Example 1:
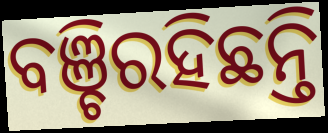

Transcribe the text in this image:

ବଞ୍ଚିରହିଛନ୍ତି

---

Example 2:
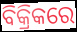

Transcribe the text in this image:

ବିକ୍ରିକରେ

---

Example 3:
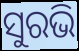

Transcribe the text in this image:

ସୁରଭି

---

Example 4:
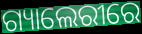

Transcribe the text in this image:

ଗ୍ୟାଲେରୀରେ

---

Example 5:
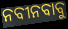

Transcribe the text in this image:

ନବୀନବାବୁ